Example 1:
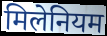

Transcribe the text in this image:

मिलेनियम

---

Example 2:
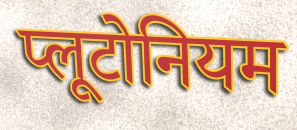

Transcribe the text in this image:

प्लूटोनियम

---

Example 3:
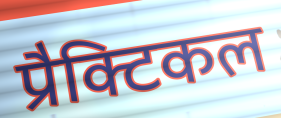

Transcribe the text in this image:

प्रैक्टिकल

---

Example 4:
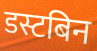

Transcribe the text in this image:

डस्टबिन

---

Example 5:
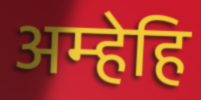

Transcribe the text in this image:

अम्हेहि